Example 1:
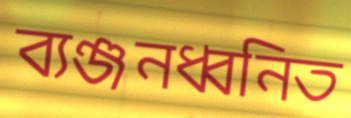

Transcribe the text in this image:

ব্যঞ্জনধ্বনিত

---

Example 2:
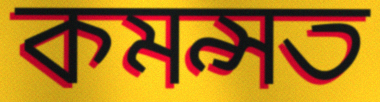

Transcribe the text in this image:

কমন্সত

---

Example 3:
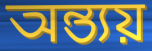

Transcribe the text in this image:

অন্ত্যয়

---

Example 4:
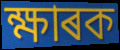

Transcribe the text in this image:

ক্ষাৰক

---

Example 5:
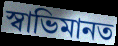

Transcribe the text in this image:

স্বাভিমানত